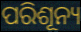
ପରିଶୂନ୍ୟ